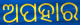
ଅପହାର